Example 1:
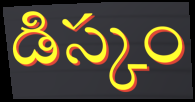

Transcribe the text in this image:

డిస్కం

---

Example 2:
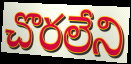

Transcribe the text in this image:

చొరలేని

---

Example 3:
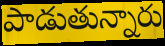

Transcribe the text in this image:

పాడుతున్నారు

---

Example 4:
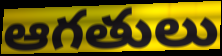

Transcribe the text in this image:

ఆగతులు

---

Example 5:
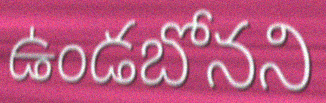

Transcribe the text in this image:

ఉండబోనని